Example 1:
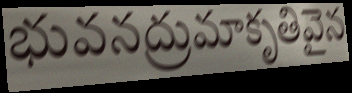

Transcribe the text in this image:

భువనద్రుమాకృతివైన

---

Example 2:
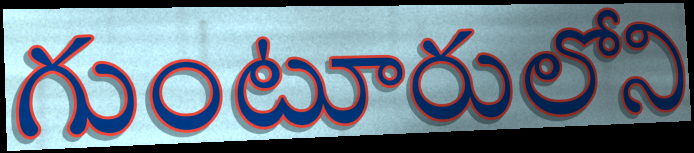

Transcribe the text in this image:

గుంటూరులోని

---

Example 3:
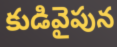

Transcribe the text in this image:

కుడివైపున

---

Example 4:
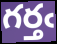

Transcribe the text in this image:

గర్తఁ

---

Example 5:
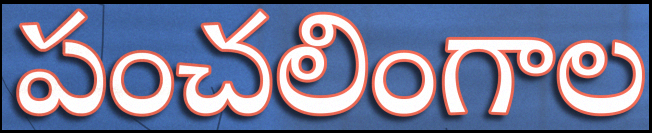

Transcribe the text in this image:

పంచలింగాల